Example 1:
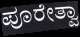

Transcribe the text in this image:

ಪೂರೇತ್ವಾ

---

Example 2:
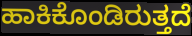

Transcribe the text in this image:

ಹಾಕಿಕೊಂಡಿರುತ್ತದೆ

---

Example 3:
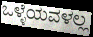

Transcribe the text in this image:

ಒಳ್ಳೆಯವಳಲ್ಲ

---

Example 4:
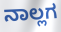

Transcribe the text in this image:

ನಾಲ್ಲಗ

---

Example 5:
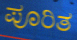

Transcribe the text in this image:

ಪೂರಿತ